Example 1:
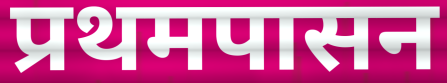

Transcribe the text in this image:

प्रथमपासन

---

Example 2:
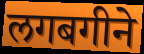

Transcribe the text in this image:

लगबगीने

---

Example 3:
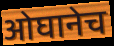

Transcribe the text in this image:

ओघानेच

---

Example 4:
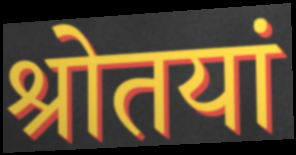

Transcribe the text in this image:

श्रोतयां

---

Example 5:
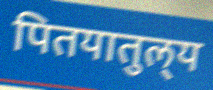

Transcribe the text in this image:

पितयातुल्य